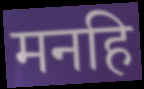
मनहि